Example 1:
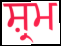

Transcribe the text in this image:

ਸ਼੍ਰਮ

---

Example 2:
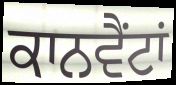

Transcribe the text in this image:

ਕਾਨਵੈਂਟਾਂ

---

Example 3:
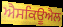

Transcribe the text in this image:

ਐਸਕਿਊਐਲ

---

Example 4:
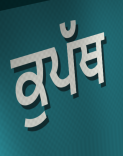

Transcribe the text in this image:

ਕੁਪੱਥ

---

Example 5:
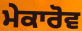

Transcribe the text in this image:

ਮੇਕਾਰੋਵ